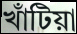
খাঁটিয়া